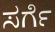
ಸರ್ಗೆ